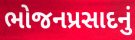
ભોજનપ્રસાદનું